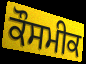
ਕੌਸਮੀਕ